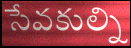
సేవకుల్ని